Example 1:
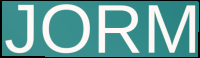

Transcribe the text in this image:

JORM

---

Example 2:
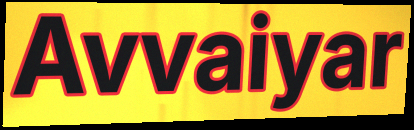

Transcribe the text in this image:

Avvaiyar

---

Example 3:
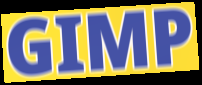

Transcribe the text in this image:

GIMP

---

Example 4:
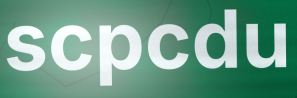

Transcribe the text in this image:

scpcdu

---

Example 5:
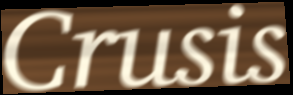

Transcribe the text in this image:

Crusis